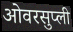
ओवरसुप्ली